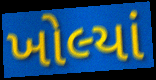
ખોલ્યાં